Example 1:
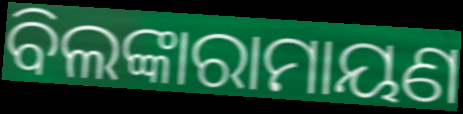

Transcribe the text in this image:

ବିଲଙ୍କାରାମାୟଣ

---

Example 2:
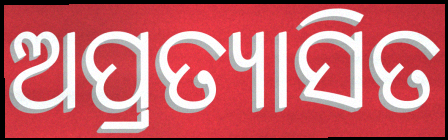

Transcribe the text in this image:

ଅପ୍ରତ୍ୟାସିତ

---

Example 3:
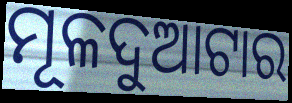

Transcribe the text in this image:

ମୂଳଦୁଆଟାର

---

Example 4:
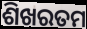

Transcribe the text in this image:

ଶିଖରତମ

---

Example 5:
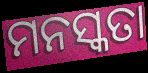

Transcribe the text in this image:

ମନସ୍କତା